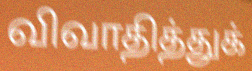
விவாதித்துக்